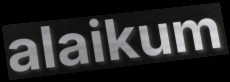
alaikum